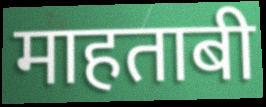
माहताबी